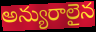
అన్యురాలైన